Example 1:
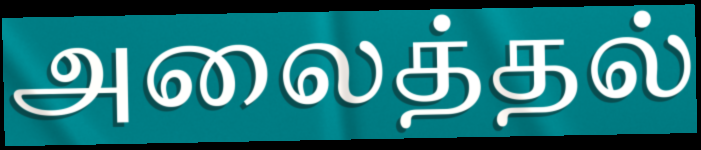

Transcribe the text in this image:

அலைத்தல்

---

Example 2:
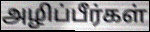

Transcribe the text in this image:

அழிப்பீர்கள்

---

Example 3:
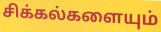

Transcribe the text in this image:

சிக்கல்களையும்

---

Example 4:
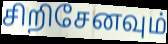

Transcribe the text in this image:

சிறிசேனவும்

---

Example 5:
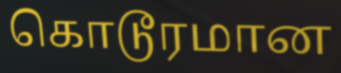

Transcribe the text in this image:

கொடூரமான